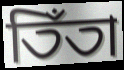
তিঁতা